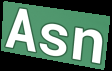
Asn